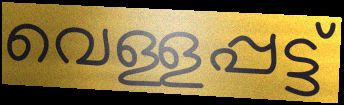
വെള്ളപ്പട്ട്